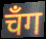
चँग